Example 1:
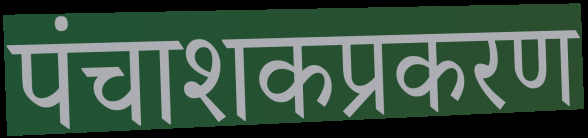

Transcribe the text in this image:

पंचाशकप्रकरण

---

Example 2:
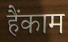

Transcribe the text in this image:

हैंकाम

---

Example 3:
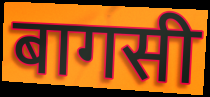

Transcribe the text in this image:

बागसी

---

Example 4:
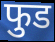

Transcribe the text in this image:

फुड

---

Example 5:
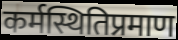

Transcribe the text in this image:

कर्मस्थितिप्रमाण